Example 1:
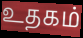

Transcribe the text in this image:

உதகம்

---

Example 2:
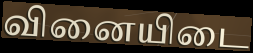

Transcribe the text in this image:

வினையிடை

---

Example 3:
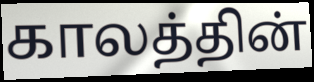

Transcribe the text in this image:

காலத்தின்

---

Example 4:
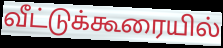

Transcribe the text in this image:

வீட்டுக்கூரையில்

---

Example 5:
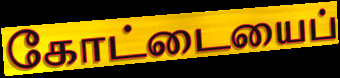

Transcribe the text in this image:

கோட்டையைப்